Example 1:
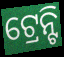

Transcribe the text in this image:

ଟ୍ରେନ୍ଟି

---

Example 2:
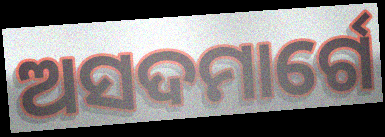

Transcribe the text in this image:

ଅସଦମାର୍ଗେ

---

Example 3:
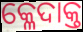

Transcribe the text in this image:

କ୍ଳେଦାକ୍ତ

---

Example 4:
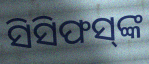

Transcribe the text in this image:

ସିସିଫସ୍‌ଙ୍କ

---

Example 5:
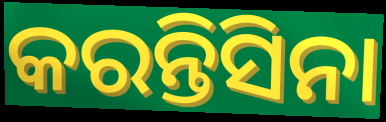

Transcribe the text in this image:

କରନ୍ତିସିନା